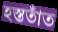
হস্ততাঁত